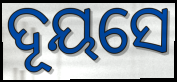
ଦୂୟସେ